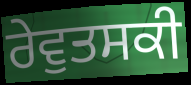
ਰੇਵੁਤਸਕੀ